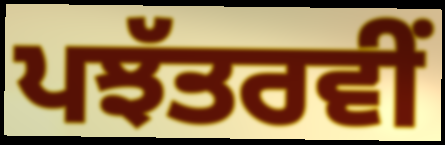
ਪਝੱਤਰਵੀਂ